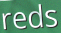
reds